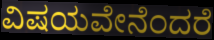
ವಿಷಯವೇನೆಂದರೆ